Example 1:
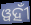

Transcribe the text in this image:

ୱହୀଁ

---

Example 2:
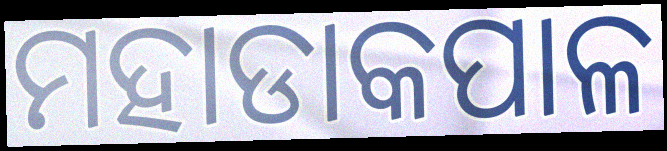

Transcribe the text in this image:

ମହାଡାକପାଳ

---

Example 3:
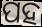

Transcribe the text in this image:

ପହ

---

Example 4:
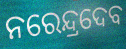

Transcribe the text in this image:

ନରେନ୍ଦ୍ରଦେବ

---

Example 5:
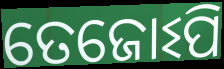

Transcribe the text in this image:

ତେଜୋଽପି